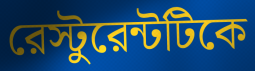
রেস্টুরেন্টটিকে